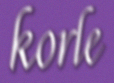
korle